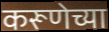
करूणेच्या